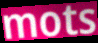
mots